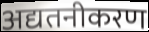
अद्यतनीकरण